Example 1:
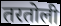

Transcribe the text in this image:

तरतोली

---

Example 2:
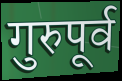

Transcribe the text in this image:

गुरुपूर्व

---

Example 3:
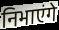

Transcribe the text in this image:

निभाएंगे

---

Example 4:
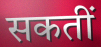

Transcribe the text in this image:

सकतीं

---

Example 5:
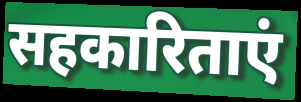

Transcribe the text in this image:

सहकारिताएं